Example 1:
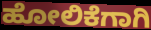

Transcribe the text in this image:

ಹೋಲಿಕೆಗಾಗಿ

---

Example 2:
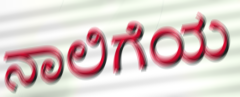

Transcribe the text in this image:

ನಾಲಿಗೆಯ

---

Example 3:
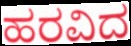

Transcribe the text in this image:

ಹರವಿದ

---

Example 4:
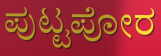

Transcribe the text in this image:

ಪುಟ್ಟಪೋರ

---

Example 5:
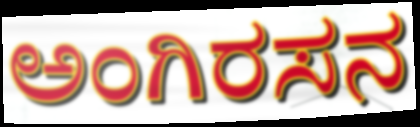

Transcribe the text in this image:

ಅಂಗಿರಸನ